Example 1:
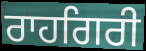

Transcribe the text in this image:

ਰਾਹਗਿਰੀ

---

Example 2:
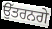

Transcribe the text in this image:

ਉੱਤਰਨਗੇ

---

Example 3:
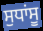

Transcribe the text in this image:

ਸੁਧਾਂਸੂ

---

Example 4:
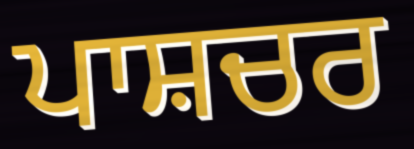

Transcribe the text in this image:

ਪਾਸ਼ਚਰ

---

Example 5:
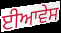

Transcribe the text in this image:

ਈਆਵੇਸ